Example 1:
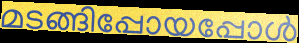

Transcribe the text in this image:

മടങ്ങിപ്പോയപ്പോൾ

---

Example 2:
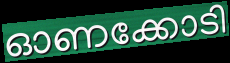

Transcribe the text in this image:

ഓണക്കോടി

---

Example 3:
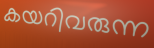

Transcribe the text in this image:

കയറിവരുന്ന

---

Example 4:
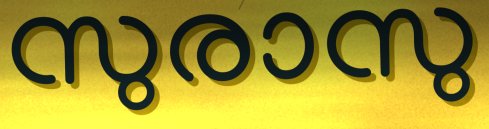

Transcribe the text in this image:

സുരാസു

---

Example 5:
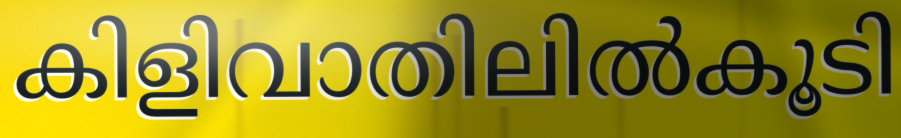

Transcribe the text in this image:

കിളിവാതിലിൽകൂടി